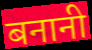
बनानी